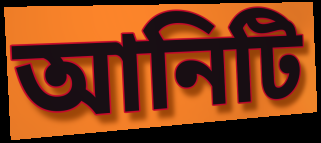
আনিটি